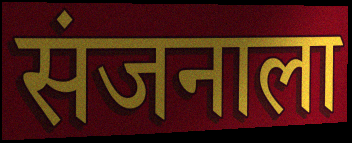
संजनाला